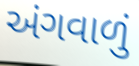
અંગવાળું